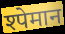
श्पेमान